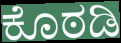
ಕೊಠಡಿ